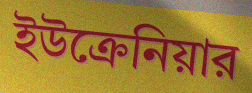
ইউক্রেনিয়ার